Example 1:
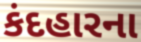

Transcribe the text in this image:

કંદહારના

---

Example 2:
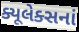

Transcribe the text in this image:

ક્યૂલેક્સનાં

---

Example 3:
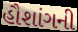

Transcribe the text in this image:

હૌશાંગની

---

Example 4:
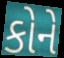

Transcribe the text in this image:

કોને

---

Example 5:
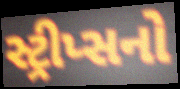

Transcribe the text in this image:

સ્ટ્રીપ્સનો